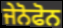
ਜੇਨੋਫੋਨ